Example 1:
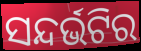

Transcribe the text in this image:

ସନ୍ଦର୍ଭଟିର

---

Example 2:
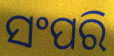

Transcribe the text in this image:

ସଂପରି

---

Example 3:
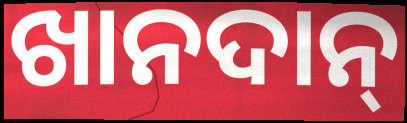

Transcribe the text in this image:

ଖାନଦାନ୍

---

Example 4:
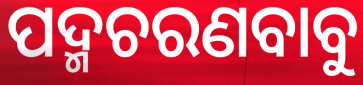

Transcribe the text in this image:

ପଦ୍ମଚରଣବାବୁ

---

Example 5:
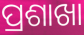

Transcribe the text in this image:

ପ୍ରଶାଖା